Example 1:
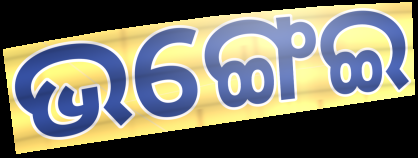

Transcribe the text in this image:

ଭଙ୍ଗେଇ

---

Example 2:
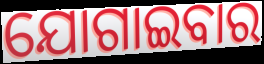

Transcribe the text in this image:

ଯୋଗାଇବାର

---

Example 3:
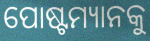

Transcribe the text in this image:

ପୋଷ୍ଟମ୍ୟାନକୁ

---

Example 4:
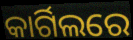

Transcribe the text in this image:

କାର୍ଗିଲରେ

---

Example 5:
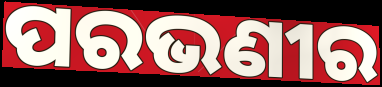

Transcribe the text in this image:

ପରଭଣୀର